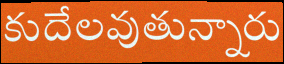
కుదేలవుతున్నారు